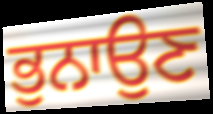
ਭੁਨਾਉਣ